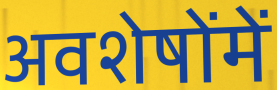
अवशेषोंमें